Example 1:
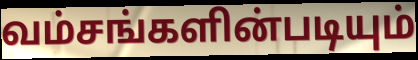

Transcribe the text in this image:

வம்சங்களின்படியும்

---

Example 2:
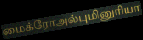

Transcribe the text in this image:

மைக்ரோஅல்புமினுரியா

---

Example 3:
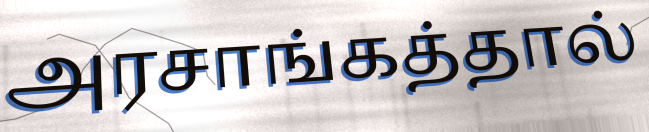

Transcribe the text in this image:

அரசாங்கத்தால்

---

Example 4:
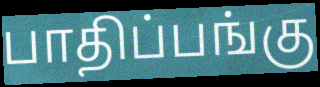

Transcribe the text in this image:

பாதிப்பங்கு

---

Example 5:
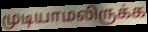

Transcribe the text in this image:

முடியாமலிருக்க